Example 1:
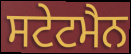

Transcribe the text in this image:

ਸਟੇਟਮੈਨ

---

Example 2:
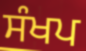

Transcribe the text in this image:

ਸੰਖਪ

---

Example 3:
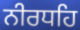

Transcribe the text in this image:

ਨੀਰਧਹਿ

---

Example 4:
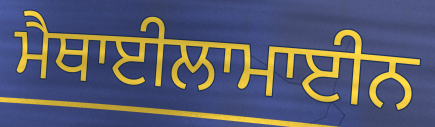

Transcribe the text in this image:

ਮੈਥਾਈਲਾਮਾਈਨ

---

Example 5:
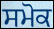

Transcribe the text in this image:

ਸਮੋਕ